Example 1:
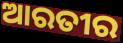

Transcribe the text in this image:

ଆରତୀର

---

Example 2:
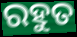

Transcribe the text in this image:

ରହୁତ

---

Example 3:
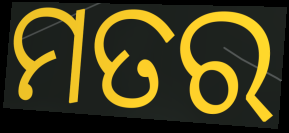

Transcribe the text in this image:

ମତର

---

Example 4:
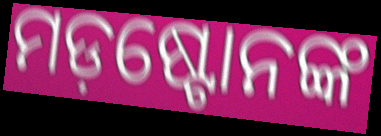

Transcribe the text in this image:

ମଡ଼ଷ୍ଟୋନଙ୍କ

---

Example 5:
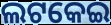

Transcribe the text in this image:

ଲଟକେଇ